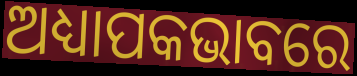
ଅଧ୍ୟାପକଭାବରେ